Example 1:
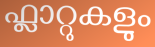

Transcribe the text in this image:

ഫ്ലാറ്റുകളും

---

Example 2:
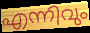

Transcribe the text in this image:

എന്നിവും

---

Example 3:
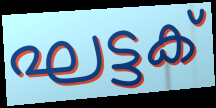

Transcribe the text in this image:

ഘട്ടക്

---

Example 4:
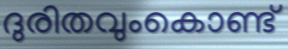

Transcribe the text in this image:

ദുരിതവുംകൊണ്ട്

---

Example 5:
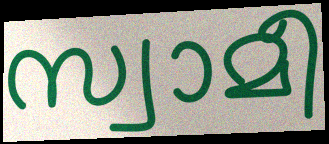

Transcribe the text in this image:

സ്വാമീ